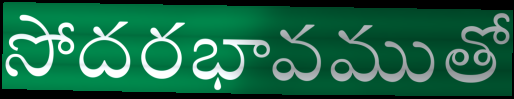
సోదరభావముతో